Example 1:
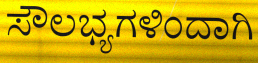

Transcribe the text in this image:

ಸೌಲಭ್ಯಗಳಿಂದಾಗಿ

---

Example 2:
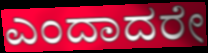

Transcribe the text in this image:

ಎಂದಾದರೇ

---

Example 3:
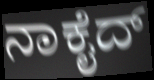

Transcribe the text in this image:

ನಾಕೈದ್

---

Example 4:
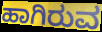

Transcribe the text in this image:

ಹಾಗಿರುವ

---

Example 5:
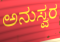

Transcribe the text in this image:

ಅನುಸ್ವರ